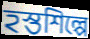
হস্তশিল্পে